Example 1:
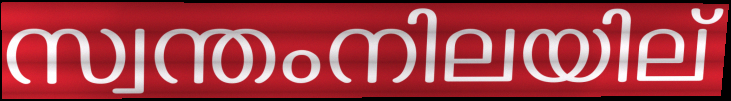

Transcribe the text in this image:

സ്വന്തംനിലയില്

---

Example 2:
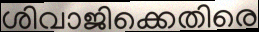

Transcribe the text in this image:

ശിവാജിക്കെതിരെ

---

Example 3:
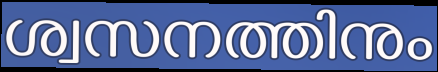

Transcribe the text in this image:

ശ്വസനത്തിനും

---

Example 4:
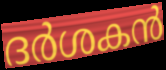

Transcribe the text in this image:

ദർശകൻ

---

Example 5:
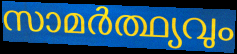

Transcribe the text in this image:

സാമർത്ഥ്യവും